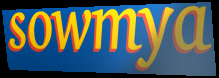
sowmya